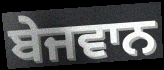
ਬੇਜਵਾਨ